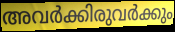
അവർക്കിരുവർക്കും